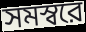
সমস্বরে